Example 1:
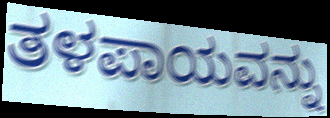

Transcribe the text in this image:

ತಳಪಾಯವನ್ನು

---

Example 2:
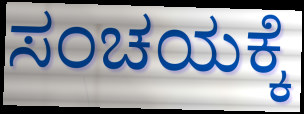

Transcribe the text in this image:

ಸಂಚಯಕ್ಕೆ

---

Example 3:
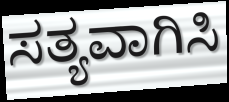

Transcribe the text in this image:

ಸತ್ಯವಾಗಿಸಿ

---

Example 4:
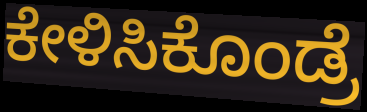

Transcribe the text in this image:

ಕೇಳಿಸಿಕೊಂಡ್ರೆ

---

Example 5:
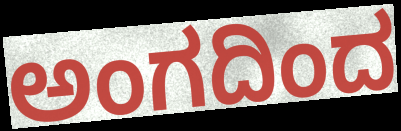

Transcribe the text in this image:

ಅಂಗದಿಂದ